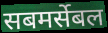
सबमर्सेबल